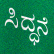
ಸಿದ್ಧನೆ